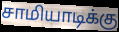
சாமியாடிக்கு